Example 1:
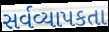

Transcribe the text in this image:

સર્વવ્યાપકતા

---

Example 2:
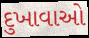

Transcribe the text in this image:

દુખાવાઓ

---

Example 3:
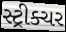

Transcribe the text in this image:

સ્ટ્રીક્ચર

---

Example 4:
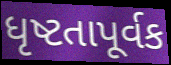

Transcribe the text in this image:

ધૃષ્ટતાપૂર્વક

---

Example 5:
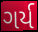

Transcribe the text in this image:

ગર્ય